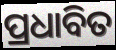
ପ୍ରଧାବିତ